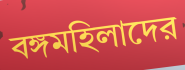
বঙ্গমহিলাদের